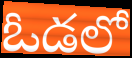
ఓడలో